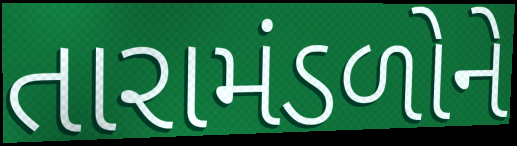
તારામંડળોને